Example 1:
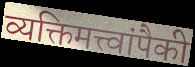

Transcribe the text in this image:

व्यक्तिमत्त्वांपैकी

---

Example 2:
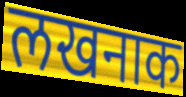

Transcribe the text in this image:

लखनाक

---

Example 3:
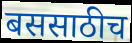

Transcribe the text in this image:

बससाठीच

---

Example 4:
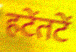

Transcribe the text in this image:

हटेंतटें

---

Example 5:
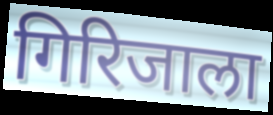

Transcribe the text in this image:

गिरिजाला